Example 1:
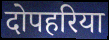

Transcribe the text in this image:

दोपहरिया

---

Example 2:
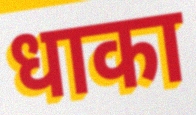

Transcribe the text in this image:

धाका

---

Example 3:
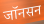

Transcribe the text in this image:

जॉनसन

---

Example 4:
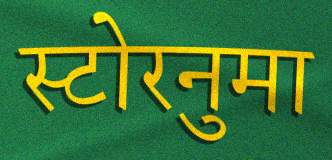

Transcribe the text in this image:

स्टोरनुमा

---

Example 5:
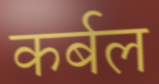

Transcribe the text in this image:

कर्बल